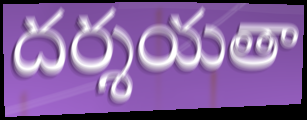
దర్శయతా